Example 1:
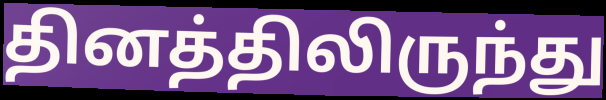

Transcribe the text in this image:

தினத்திலிருந்து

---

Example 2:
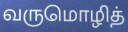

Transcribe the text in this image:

வருமொழித்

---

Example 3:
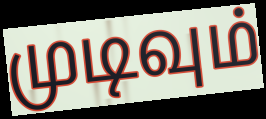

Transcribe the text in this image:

முடிவும்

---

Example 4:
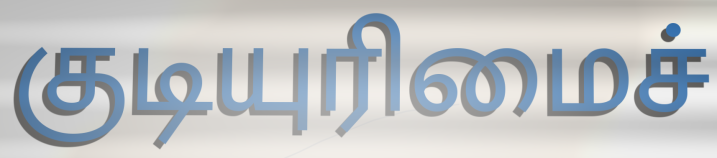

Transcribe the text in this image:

குடியுரிமைச்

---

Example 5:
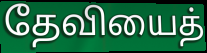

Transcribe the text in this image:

தேவியைத்